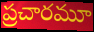
ప్రచారమూ